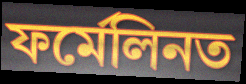
ফৰ্মেলিনত